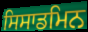
ਸਿਸਾਡਮਿਨ